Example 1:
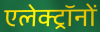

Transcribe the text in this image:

एलेक्ट्रॉनों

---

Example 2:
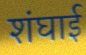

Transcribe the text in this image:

शंघाई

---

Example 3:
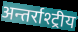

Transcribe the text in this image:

अन्तर्राश्ट्रीय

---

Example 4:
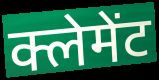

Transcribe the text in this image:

क्लेमेंट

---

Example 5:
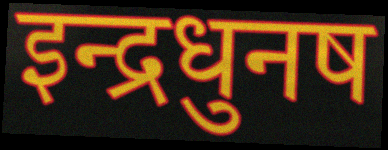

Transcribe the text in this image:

इन्द्रधुनष